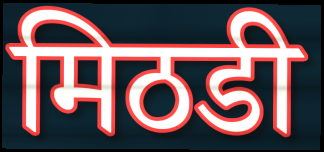
मिठडी